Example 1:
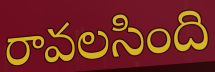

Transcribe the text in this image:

రావలసింది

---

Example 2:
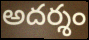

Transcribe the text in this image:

అదర్శం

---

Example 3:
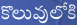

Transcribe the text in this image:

కొలువులోకి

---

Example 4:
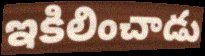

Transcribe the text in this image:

ఇకిలించాడు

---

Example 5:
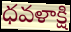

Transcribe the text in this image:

ధవళాక్షి